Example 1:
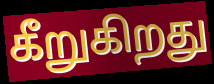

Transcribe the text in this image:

கீறுகிறது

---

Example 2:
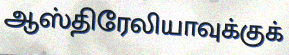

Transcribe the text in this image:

ஆஸ்திரேலியாவுக்குக்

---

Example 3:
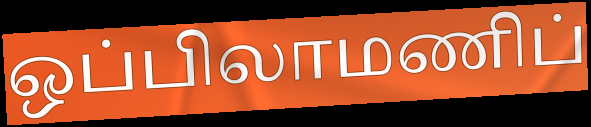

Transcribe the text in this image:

ஒப்பிலாமணிப்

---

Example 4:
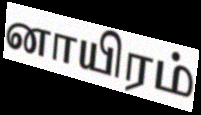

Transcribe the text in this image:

னாயிரம்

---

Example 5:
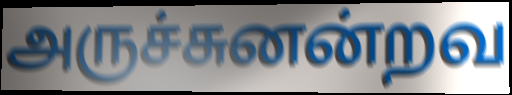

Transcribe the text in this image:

அருச்சுனன்றவ